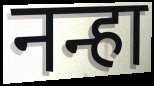
नन्हा